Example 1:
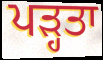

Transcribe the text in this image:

ਪੜ੍ਹਤਾ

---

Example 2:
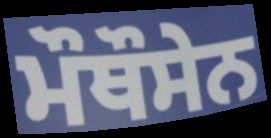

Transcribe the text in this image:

ਮੌਥੌਸੇਨ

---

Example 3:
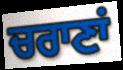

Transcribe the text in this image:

ਚਰਾਣਾਂ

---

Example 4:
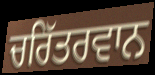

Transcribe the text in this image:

ਚਰਿੱਤਰਵਾਨ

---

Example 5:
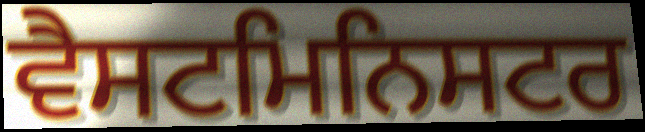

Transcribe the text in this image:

ਵੈਸਟਮਿਨਿਸਟਰ